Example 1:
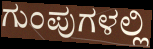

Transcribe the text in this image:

ಗುಂಪುಗಳಲ್ಲಿ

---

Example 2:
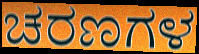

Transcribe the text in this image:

ಚರಣಗಳ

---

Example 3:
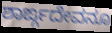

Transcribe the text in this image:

ಶಾರ್ಙ್ಗದೇವನೂ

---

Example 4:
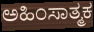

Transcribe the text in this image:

ಅಹಿಂಸಾತ್ಮಕ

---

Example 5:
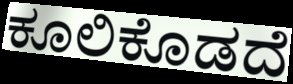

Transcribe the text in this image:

ಕೂಲಿಕೊಡದೆ